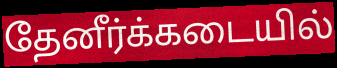
தேனீர்க்கடையில்